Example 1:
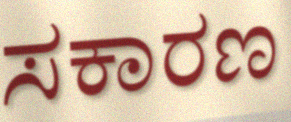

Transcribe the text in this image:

ಸಕಾರಣ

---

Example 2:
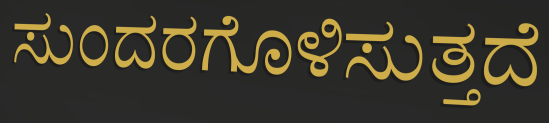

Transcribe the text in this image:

ಸುಂದರಗೊಳಿಸುತ್ತದೆ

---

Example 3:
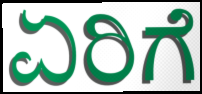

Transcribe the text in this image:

ಏರಿಗೆ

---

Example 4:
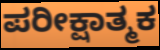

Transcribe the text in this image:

ಪರೀಕ್ಷಾತ್ಮಕ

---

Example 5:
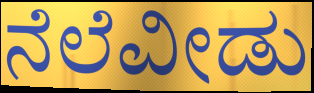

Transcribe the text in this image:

ನೆಲೆವೀಡು